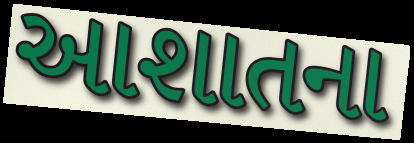
આશાતના